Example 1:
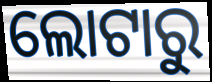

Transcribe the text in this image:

ଲୋଟାରୁ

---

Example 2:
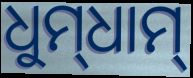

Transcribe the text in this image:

ଧୁମ୍‌ଧାମ୍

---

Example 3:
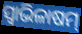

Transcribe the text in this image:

ସ୍ବାଭିଳାଷମ୍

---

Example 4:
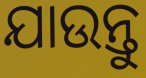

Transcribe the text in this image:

ଯାଉନ୍ତୁ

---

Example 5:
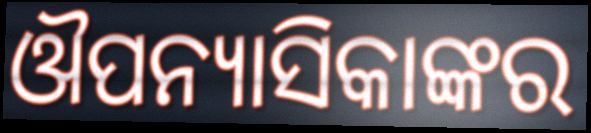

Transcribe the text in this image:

ଔପନ୍ୟାସିକାଙ୍କର